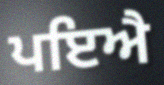
ਪਇਐ